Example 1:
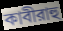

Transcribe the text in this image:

কাবীরাহু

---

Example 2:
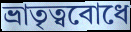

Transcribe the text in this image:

ভ্রাতৃত্ববোধে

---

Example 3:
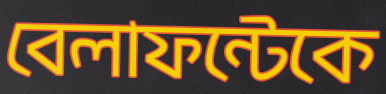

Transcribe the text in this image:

বেলাফন্টেকে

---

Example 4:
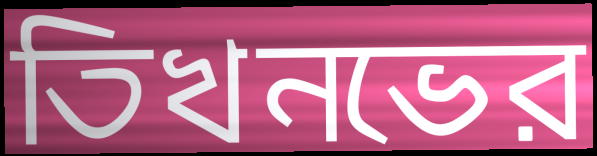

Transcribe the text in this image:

তিখনভের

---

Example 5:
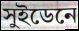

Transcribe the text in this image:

সুইডেনে